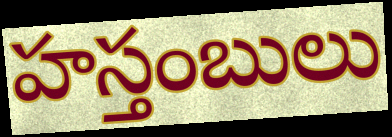
హస్తంబులు